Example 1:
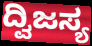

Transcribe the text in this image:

ದ್ವಿಜಸ್ಯ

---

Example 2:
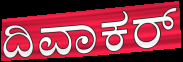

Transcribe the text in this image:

ದಿವಾಕರ್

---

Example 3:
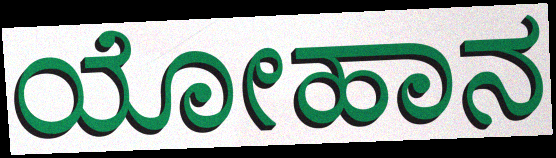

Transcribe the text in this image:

ಯೋಹಾನ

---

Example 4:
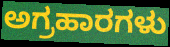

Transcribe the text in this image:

ಅಗ್ರಹಾರಗಳು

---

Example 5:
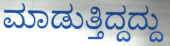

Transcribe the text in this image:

ಮಾಡುತ್ತಿದ್ದದ್ದು